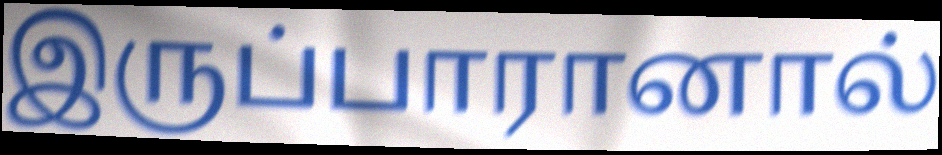
இருப்பாரானால்